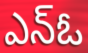
ఎన్ఓ